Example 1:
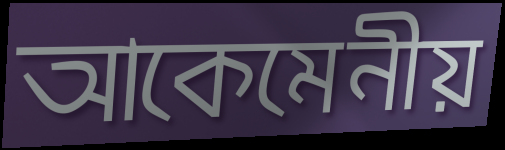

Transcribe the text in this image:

আকেমেনীয়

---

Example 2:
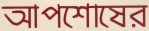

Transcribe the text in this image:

আপশোষের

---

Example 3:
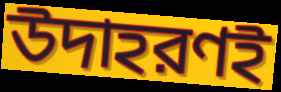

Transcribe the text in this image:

উদাহরণই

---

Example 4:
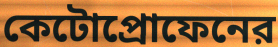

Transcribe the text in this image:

কেটোপ্রোফেনের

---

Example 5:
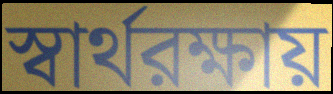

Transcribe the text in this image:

স্বার্থরক্ষায়